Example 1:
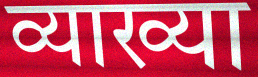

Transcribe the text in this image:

व्याख्‍या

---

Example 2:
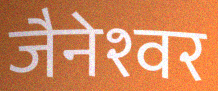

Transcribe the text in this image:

जैनेश्वर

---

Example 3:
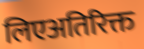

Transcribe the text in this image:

लिएअतिरिक्त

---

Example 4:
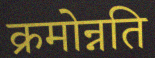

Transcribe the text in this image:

क्रमोन्नति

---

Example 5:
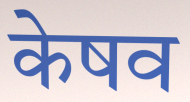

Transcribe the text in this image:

केषव